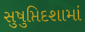
સુષુપ્તિદશામાં